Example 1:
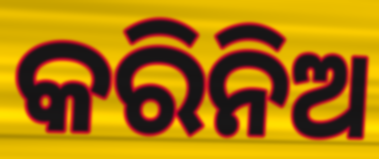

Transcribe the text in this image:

କରିନିଅ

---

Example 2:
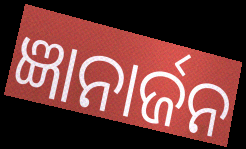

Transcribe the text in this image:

ଜ୍ଞାନାର୍ଜନ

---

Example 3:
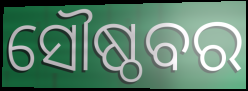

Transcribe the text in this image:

ସୌଷ୍ଠବର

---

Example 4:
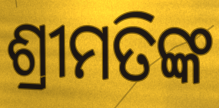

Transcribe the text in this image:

ଶ୍ରୀମତିଙ୍କ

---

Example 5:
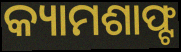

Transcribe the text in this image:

କ୍ୟାମଶାଫ୍ଟ